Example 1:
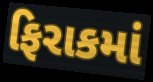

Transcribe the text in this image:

ફિરાકમાં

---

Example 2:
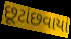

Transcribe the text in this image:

છૂટાંછવાયાં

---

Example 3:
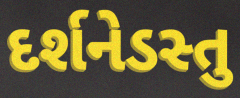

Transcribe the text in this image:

દર્શનેડસ્તુ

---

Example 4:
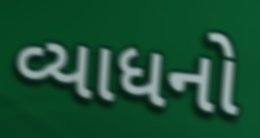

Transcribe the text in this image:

વ્યાધનો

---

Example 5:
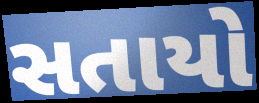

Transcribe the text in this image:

સતાયો